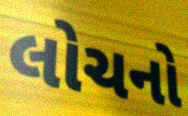
લોચનો